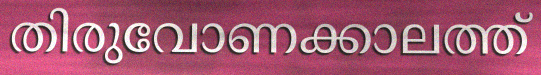
തിരുവോണക്കാലത്ത്